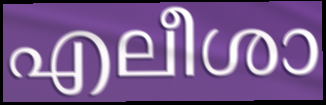
എലീശാ